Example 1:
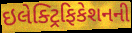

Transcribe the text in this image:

ઇલેક્ટ્રિફિકેશનની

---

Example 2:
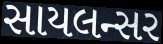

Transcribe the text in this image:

સાયલન્સર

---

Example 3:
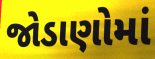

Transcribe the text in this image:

જોડાણોમાં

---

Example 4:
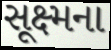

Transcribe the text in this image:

સૂક્ષ્મના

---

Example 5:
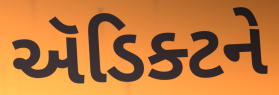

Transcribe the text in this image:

ઍડિક્ટને